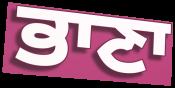
ਭਾਣਾ